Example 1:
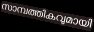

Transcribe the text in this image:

സാമ്പത്തികവുമായി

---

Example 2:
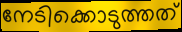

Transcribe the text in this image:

നേടിക്കൊടുത്തത്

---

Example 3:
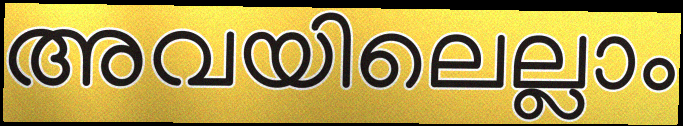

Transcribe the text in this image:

അവയിലെല്ലാം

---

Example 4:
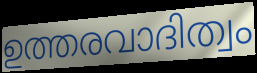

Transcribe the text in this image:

ഉത്തരവാദിത്വം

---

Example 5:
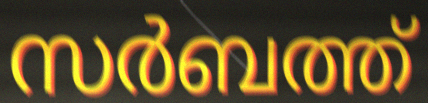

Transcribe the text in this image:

സർബത്ത്